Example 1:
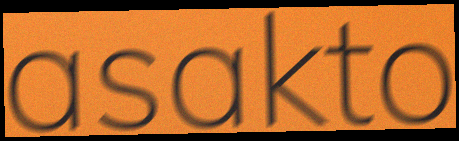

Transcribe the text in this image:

asakto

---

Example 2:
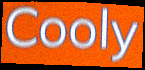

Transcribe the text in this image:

Cooly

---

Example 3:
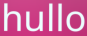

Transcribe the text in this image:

hullo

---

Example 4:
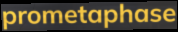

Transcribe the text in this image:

prometaphase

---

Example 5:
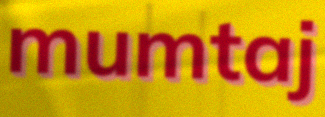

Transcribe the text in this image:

mumtaj